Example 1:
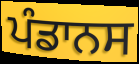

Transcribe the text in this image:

ਪੰਡਾਨਸ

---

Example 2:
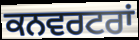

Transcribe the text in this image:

ਕਨਵਰਟਰਾਂ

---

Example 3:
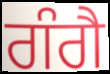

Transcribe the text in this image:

ਗੰਗੈ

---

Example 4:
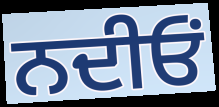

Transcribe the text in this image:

ਨਦੀਓਂ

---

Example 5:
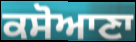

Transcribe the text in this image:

ਕਸੋਆਣਾ